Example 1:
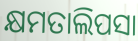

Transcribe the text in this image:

କ୍ଷମତାଲିପସା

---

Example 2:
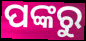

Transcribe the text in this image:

ପଙ୍କରୁ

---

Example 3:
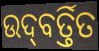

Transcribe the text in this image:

ଉଦ୍‌ବର୍ତ୍ତିତ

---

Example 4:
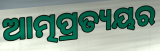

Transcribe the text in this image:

ଆତ୍ମପ୍ରତ୍ୟୟର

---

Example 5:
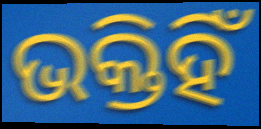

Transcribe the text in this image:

ଭକ୍ତିହିଁ